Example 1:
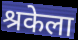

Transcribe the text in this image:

श्रकेला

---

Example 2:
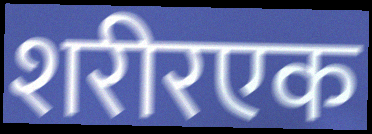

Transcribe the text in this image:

शरीरएक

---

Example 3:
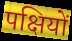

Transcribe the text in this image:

पक्षियों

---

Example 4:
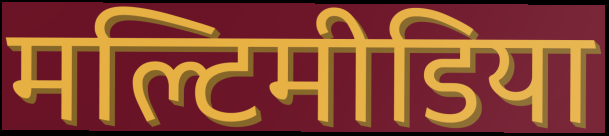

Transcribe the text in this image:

मल्टिमीडिया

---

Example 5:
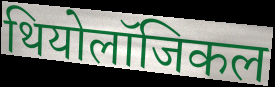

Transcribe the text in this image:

थियोलॉजिकल